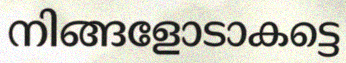
നിങ്ങളോടാകട്ടെ